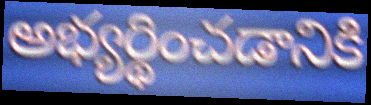
అభ్యర్థించడానికి